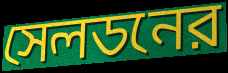
সেলডনের